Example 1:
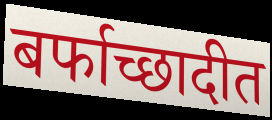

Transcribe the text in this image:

बर्फाच्छादीत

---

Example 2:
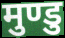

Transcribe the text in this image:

मुण्डु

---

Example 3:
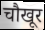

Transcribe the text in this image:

चौखूर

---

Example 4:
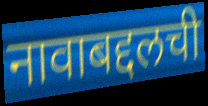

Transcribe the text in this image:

नावाबद्दलची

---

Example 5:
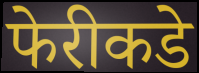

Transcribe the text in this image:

फेरीकडे